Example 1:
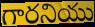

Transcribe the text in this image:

గారనియు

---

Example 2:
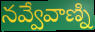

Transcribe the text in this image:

నవ్వేవాణ్ని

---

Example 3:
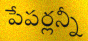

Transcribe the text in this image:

పేపర్లన్నీ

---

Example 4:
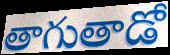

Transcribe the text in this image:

తాగుతాడో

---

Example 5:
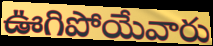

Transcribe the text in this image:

ఊగిపోయేవారు